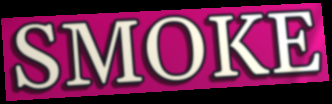
SMOKE